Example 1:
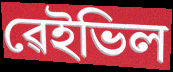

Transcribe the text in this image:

ৱেইভিল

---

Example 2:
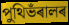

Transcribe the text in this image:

পুথিভঁৰালৰ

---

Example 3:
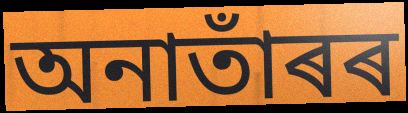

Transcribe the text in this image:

অনাতাঁৰৰ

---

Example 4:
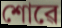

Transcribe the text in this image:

শোৱে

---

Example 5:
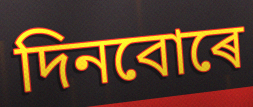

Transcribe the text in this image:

দিনবোৰে